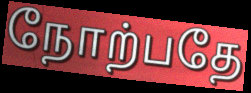
நோற்பதே